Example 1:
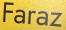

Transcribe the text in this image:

Faraz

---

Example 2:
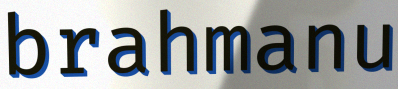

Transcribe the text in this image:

brahmanu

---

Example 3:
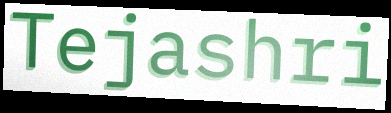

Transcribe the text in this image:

Tejashri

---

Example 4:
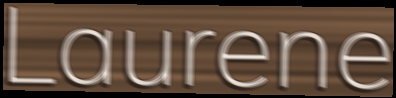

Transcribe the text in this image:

Laurene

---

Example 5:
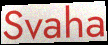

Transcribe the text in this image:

Svaha